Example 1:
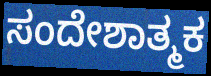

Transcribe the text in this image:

ಸಂದೇಶಾತ್ಮಕ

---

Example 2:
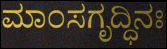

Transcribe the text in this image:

ಮಾಂಸಗೃದ್ಧಿನಃ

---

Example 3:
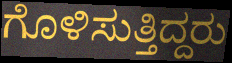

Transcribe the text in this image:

ಗೊಳಿಸುತ್ತಿದ್ದರು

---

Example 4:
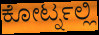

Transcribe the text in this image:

ಕೋರ್ಟ್ನಲ್ಲಿ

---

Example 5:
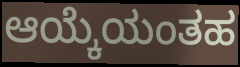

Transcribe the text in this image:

ಆಯ್ಕೆಯಂತಹ